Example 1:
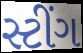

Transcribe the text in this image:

સ્ટીંગ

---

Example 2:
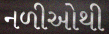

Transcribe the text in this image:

નળીઓથી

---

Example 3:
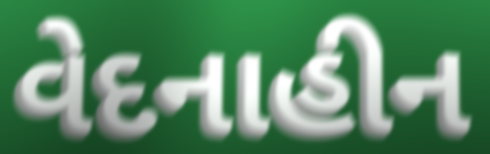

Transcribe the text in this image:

વેદનાહીન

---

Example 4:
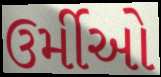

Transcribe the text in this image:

ઉર્મીઓ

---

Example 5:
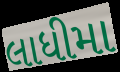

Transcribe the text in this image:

લાધીમા